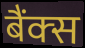
बैंक्‍स